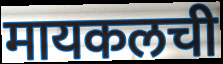
मायकलची